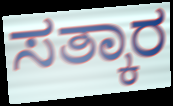
ಸತ್ಕಾರ